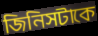
জিনিসটাকে